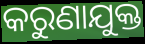
କରୁଣାଯୁକ୍ତ